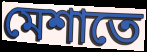
মেশাতে